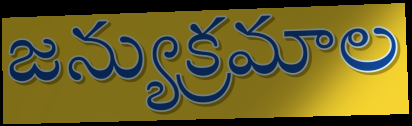
జన్యుక్రమాల